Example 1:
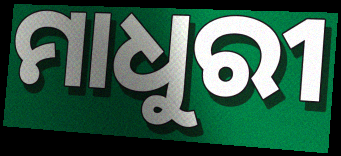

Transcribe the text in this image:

ମାଧୁରୀ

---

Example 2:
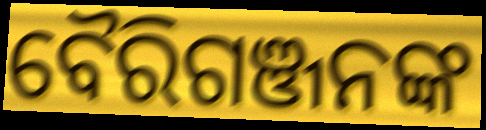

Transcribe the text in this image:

ବୈରିଗଞ୍ଜନଙ୍କ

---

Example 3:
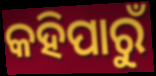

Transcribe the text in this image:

କହିପାରୁଁ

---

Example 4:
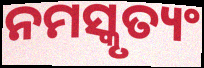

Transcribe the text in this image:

ନମସ୍କୃତ୍ୟଂ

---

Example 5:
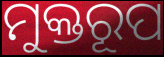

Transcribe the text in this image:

ମୁକ୍ତରୂପ